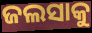
ଜଲସାକୁ